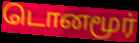
டொனமூர்